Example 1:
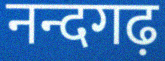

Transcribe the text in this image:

नन्दगढ़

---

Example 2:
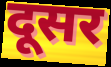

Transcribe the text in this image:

दूसर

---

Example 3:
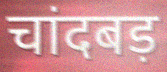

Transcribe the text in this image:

चांदबड़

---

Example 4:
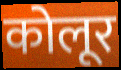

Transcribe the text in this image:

कोलूर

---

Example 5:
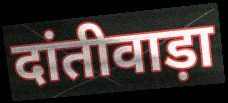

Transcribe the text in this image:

दांतीवाड़ा